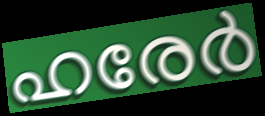
ഹരേർ